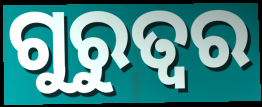
ଗୁରୁତ୍ବର